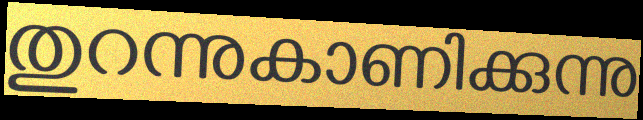
തുറന്നുകാണിക്കുന്നു